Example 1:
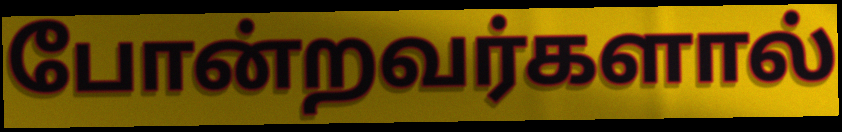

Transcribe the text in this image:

போன்றவர்களால்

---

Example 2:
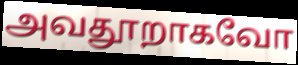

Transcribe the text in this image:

அவதூறாகவோ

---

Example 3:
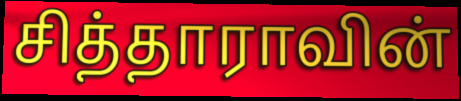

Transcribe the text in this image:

சித்தாராவின்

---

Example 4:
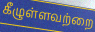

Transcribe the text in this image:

கீழுள்ளவற்றை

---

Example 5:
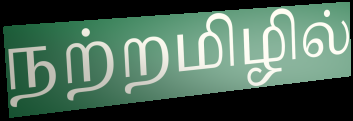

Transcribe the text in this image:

நற்றமிழில்